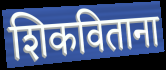
शिकविताना